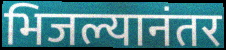
भिजल्यानंतर